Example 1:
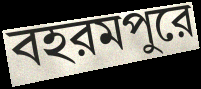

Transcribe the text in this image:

বহরমপুরে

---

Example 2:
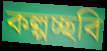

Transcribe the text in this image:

কল্পচ্ছবি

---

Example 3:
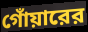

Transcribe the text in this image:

গোঁয়ারের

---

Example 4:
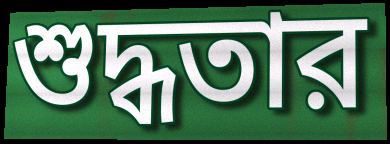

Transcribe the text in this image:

শুদ্ধতার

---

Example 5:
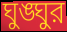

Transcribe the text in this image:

ঘুঙ্ঘুর